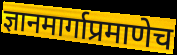
ज्ञानमार्गाप्रमाणेच